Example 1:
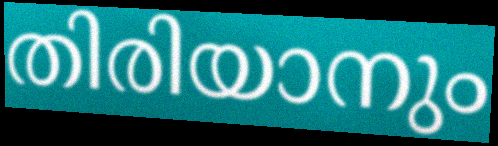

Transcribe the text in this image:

തിരിയാനും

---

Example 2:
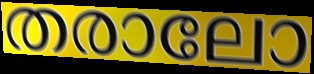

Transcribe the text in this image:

തരാലോ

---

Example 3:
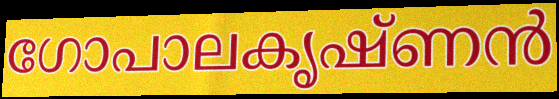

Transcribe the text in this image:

ഗോപാലകൃഷ്ണൻ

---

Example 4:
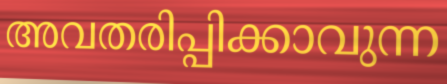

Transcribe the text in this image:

അവതരിപ്പിക്കാവുന്ന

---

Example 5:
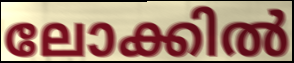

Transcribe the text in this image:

ലോക്കിൽ